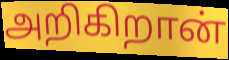
அறிகிறான்